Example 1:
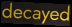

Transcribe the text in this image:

decayed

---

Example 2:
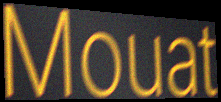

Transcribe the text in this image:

Mouat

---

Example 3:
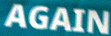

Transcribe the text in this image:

AGAIN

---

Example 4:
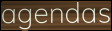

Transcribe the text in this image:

agendas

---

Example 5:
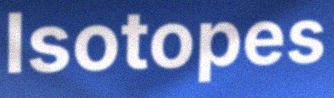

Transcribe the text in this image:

Isotopes